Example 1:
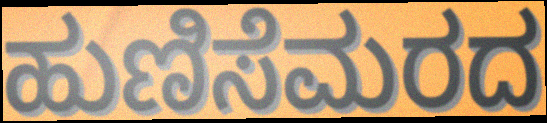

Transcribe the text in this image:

ಹುಣಿಸೆಮರದ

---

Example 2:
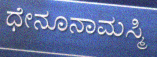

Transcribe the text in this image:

ಧೇನೂನಾಮಸ್ಮಿ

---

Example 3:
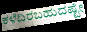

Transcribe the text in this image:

ಕಳೆದಿರಬಹುದಷ್ಟೇ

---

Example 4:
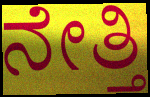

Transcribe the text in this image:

ನೇತ್ತಿ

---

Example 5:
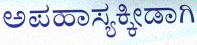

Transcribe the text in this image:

ಅಪಹಾಸ್ಯಕ್ಕೀಡಾಗಿ